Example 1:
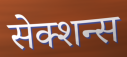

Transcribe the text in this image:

सेक्शन्स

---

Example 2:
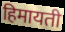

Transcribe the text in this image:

हिमायती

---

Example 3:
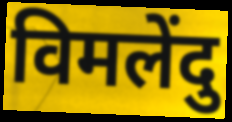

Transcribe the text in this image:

विमलेंदु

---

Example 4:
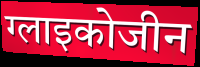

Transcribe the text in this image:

ग्लाइकोजीन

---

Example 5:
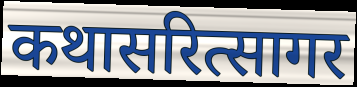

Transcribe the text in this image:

कथासरित्सागर